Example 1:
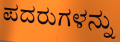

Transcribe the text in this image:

ಪದರುಗಳನ್ನು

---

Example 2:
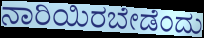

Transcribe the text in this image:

ನಾರಿಯಿರಬೇಡೆಂದು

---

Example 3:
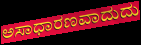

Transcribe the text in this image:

ಅಸಾಧಾರಣವಾದುದು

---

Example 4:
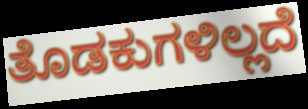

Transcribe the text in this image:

ತೊಡಕುಗಳಿಲ್ಲದೆ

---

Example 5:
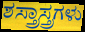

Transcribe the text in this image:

ಶಸ್ತ್ರಾಸ್ತ್ರಗಳು